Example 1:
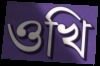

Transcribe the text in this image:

ওখি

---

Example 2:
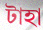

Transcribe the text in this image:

টাহা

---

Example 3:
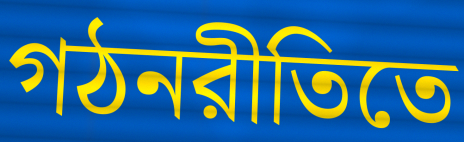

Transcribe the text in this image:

গঠনরীতিতে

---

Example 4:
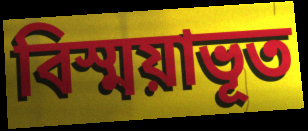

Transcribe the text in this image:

বিস্ময়াভূত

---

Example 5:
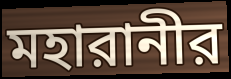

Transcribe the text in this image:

মহারানীর